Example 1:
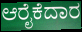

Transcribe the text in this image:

ಆರೈಕೆದಾರ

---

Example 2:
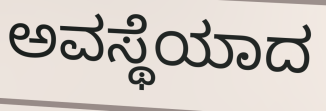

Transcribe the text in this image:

ಅವಸ್ಥೆಯಾದ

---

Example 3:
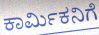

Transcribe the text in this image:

ಕಾರ್ಮಿಕನಿಗೆ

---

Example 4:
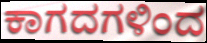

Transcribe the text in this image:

ಕಾಗದಗಳಿಂದ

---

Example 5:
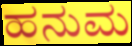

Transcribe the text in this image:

ಹನುಮ